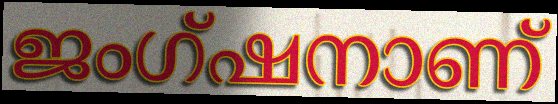
ജംഗ്ഷനാണ്